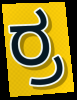
ರ್ರ